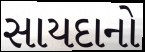
સાયદાનો